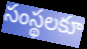
సంస్థలకూ